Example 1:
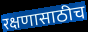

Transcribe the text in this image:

रक्षणासाठीच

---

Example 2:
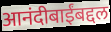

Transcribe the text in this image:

आनंदीबाईंबद्दल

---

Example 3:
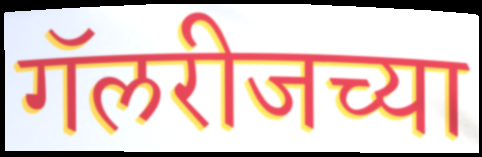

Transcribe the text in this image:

गॅलरीजच्या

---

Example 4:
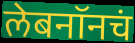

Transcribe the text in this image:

लेबनॉनचं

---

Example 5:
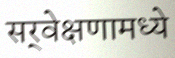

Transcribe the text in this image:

सर्वेक्षणामध्ये